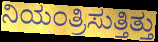
ನಿಯಂತ್ರಿಸುತ್ತಿತ್ತು